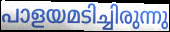
പാളയമടിച്ചിരുന്നു